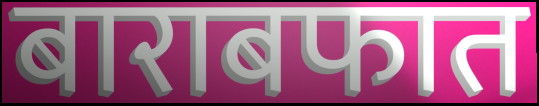
बाराबफात